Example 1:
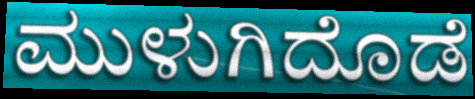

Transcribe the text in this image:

ಮುಳುಗಿದೊಡೆ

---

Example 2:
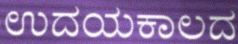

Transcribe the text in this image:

ಉದಯಕಾಲದ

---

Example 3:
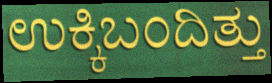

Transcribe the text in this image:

ಉಕ್ಕಿಬಂದಿತ್ತು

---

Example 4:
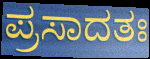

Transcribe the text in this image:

ಪ್ರಸಾದತಃ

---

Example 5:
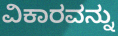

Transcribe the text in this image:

ವಿಕಾರವನ್ನು